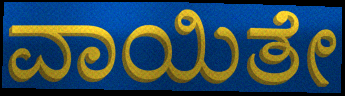
ವಾಯಿತೇ